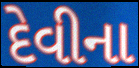
દેવીના